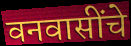
वनवासींचे